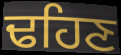
ਢਹਿਣ